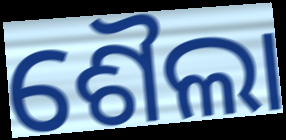
ଶୈଲା